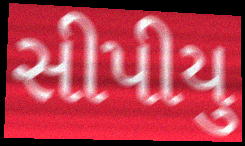
સીપીયુ